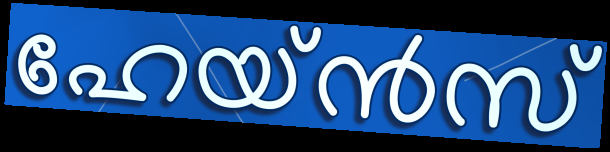
ഹേയ്ൻസ്